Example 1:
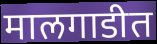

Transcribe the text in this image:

मालगाडीत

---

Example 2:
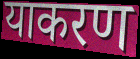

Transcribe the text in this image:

याकरण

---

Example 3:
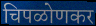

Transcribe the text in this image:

चिपळोणकर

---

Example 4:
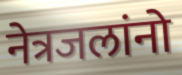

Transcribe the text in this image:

नेत्रजलांनो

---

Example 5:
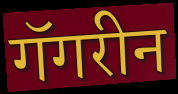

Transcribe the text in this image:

गॅगरीन